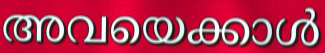
അവയെക്കാൾ